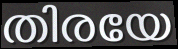
തിരയേ